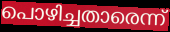
പൊഴിച്ചതാരെന്ന്